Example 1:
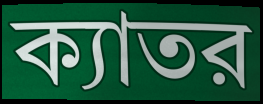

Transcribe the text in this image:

ক্যাতর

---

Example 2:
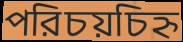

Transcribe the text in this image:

পরিচয়চিহ্ন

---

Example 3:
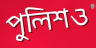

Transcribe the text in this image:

পুলিশও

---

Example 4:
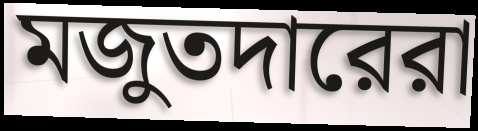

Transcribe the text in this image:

মজুতদারেরা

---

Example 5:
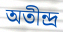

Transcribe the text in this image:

অতীন্দ্র